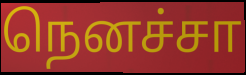
நெனச்சா